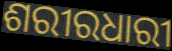
ଶରୀରଧାରୀ